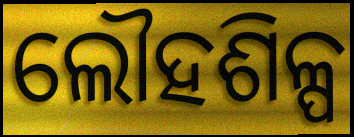
ଲୌହଶିଳ୍ପ